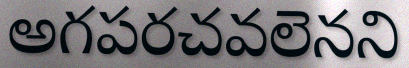
అగపరచవలెనని